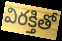
విరక్తితో